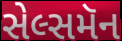
સેલ્સમૅન